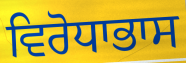
ਵਿਰੋਧਾਭਾਸ